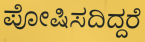
ಪೋಷಿಸದಿದ್ದರೆ